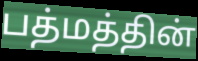
பத்மத்தின்